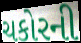
ચકોરની